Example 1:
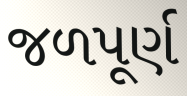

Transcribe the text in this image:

જળપૂર્ણ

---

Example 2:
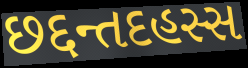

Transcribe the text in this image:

છદ્દન્તદહસ્સ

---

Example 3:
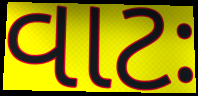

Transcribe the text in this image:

વાટઃ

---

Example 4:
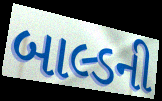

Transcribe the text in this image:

બાલ્ડની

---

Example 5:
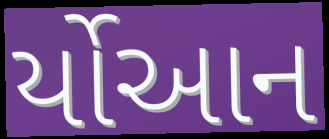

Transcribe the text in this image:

ર્યોઆન